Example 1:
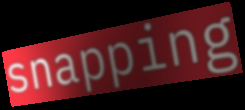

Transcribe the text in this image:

snapping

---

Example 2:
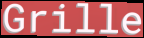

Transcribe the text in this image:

Grille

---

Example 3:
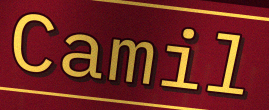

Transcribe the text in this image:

Camil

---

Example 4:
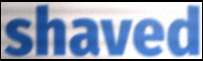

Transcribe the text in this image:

shaved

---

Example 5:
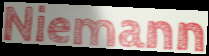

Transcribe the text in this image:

Niemann